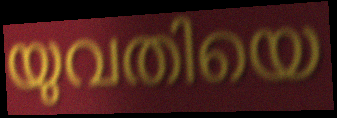
യുവതിയെ